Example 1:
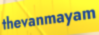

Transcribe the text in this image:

thevanmayam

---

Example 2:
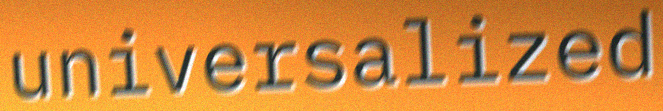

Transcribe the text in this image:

universalized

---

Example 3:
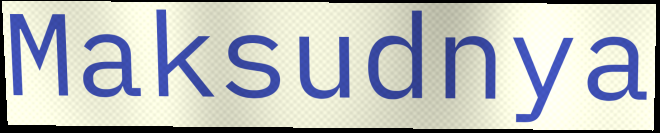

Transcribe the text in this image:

Maksudnya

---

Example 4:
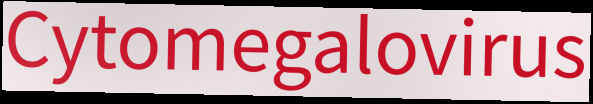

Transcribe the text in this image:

Cytomegalovirus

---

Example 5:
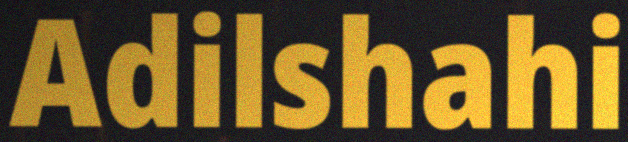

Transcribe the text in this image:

Adilshahi